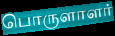
பொருளாளர்